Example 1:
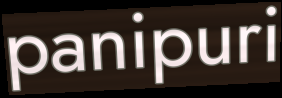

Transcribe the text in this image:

panipuri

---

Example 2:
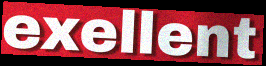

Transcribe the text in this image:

exellent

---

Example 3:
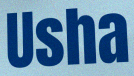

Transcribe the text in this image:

Usha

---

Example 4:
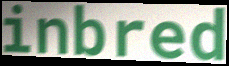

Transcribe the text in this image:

inbred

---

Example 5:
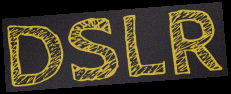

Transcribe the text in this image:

DSLR